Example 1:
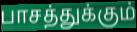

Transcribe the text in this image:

பாசத்துக்கும்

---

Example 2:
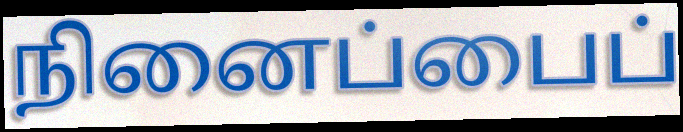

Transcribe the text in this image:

நினைப்பைப்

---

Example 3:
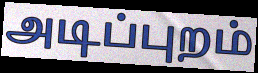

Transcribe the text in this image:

அடிப்புறம்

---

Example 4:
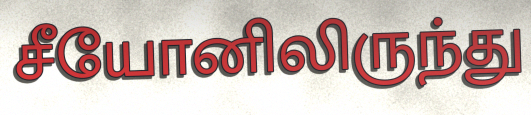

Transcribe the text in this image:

சீயோனிலிருந்து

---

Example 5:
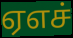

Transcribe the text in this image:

ஏஎச்